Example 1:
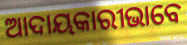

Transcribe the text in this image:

ଆଦାୟକାରୀଭାବେ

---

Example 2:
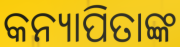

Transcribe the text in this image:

କନ୍ୟାପିତାଙ୍କ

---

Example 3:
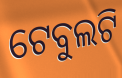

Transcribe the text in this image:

ଟେବୁଲଟି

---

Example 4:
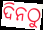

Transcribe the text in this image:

ଦିନଠୁ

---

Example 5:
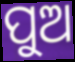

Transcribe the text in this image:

ପୁଅ